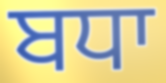
ਬਧਾ